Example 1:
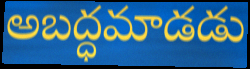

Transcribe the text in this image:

అబద్ధమాడడు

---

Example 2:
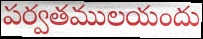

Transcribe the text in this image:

పర్వతములయందు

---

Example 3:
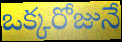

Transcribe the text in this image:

ఒక్కరోజునే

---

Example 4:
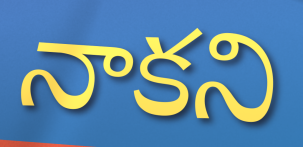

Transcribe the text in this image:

నాకని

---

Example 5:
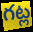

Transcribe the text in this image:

గట్ల